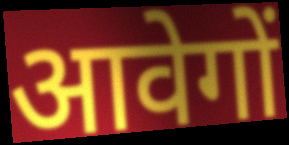
आवेगों